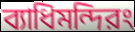
ব্যাধিমন্দিরং